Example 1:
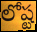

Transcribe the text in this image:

లోష్ట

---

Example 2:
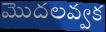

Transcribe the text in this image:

మొదలవ్వక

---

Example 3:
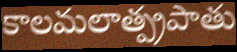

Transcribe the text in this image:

కాలమలాత్ప్రపాతు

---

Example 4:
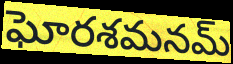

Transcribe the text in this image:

ఘోరశమనమ్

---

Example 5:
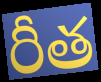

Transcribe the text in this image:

రీత